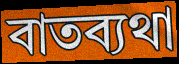
বাতব্যথা